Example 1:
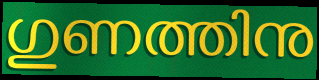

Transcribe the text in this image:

ഗുണത്തിനു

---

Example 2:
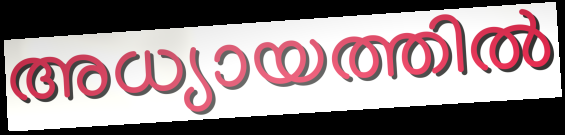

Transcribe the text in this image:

അധ്യായത്തിൽ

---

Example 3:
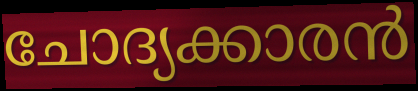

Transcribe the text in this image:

ചോദ്യക്കാരൻ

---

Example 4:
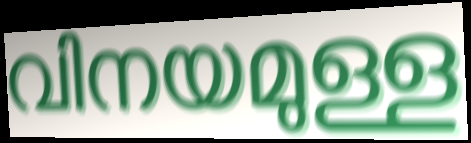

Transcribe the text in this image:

വിനയമുള്ള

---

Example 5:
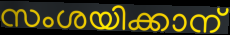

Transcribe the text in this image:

സംശയിക്കാന്